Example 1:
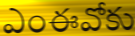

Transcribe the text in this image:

ఎంఈవోకు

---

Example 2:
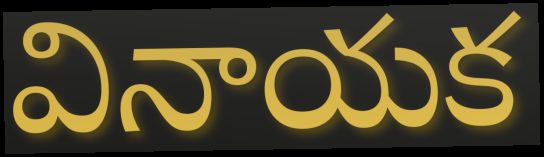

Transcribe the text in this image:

వినాయక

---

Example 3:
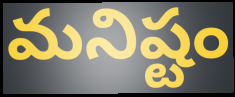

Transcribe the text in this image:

మనిష్టం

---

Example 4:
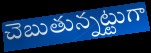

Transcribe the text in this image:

చెబుతున్నట్టుగా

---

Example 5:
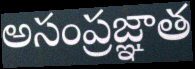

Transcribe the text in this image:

అసంప్రజ్ఞాత